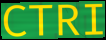
CTRI